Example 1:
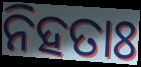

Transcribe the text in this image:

ନିହତାଃ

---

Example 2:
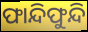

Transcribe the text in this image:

ଫାନ୍ଦିଫୁନ୍ଦି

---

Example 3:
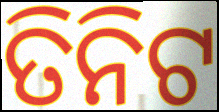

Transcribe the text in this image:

ତିନିଟ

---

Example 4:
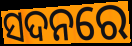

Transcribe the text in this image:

ସଦନରେ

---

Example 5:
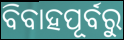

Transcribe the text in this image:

ବିବାହପୂର୍ବରୁ